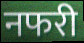
नफरी